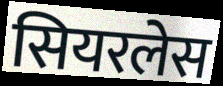
सियरलेस